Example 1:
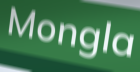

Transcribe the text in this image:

Mongla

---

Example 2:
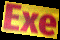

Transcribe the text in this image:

Exe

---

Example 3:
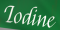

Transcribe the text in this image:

Iodine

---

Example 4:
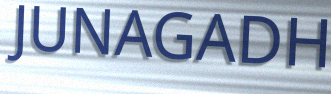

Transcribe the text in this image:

JUNAGADH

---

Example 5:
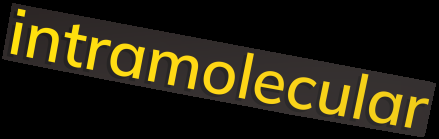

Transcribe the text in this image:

intramolecular